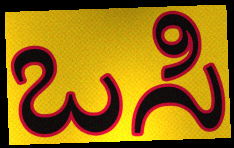
ಒಸಿ